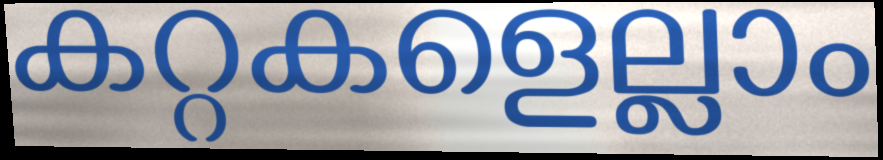
കറ്റകളെല്ലാം